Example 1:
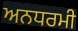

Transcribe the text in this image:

ਅਨਧਰਮੀ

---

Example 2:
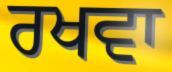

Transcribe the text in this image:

ਰਖਵਾ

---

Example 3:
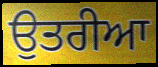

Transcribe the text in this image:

ਉਤਰੀਆ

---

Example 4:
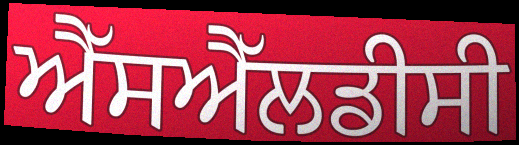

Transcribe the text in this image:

ਐੱਸਐੱਲਡੀਸੀ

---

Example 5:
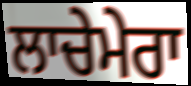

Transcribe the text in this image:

ਲਾਚੇਮੇਰਾ